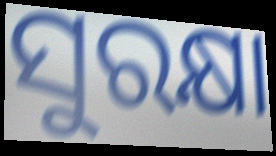
ସୁରକ୍ଷା